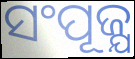
ସଂପୂଜ୍ଯ